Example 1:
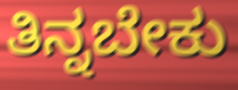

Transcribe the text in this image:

ತಿನ್ನಬೇಕು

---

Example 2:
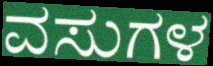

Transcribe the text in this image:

ವಸುಗಳ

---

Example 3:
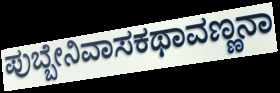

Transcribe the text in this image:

ಪುಬ್ಬೇನಿವಾಸಕಥಾವಣ್ಣನಾ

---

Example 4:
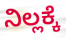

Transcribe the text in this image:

ನಿಲ್ಲಕ್ಕೆ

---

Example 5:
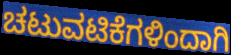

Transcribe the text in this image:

ಚಟುವಟಿಕೆಗಳಿಂದಾಗಿ